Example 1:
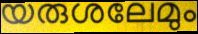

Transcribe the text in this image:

യരുശലേമും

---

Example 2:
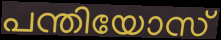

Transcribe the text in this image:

പന്തിയോസ്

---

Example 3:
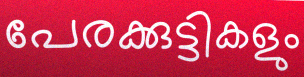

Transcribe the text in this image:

പേരക്കുട്ടികളും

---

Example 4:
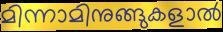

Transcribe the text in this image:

മിന്നാമിനുങ്ങുകളാൽ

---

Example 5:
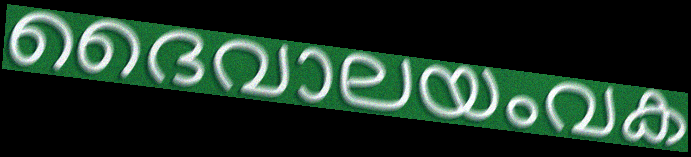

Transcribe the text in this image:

ദൈവാലയംവക